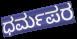
ಧರ್ಮಪರ